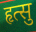
हृत्सु